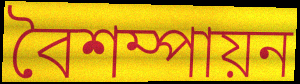
বৈশম্পায়ন